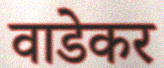
वाडेकर